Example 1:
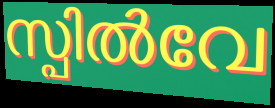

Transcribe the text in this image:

സ്പിൽവേ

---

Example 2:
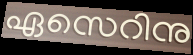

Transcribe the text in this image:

ഏസെറിനു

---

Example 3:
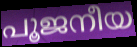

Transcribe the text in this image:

പൂജനീയ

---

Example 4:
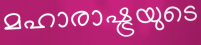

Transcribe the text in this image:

മഹാരാഷ്ട്രയുടെ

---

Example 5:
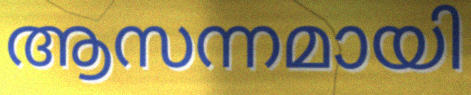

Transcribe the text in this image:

ആസന്നമായി